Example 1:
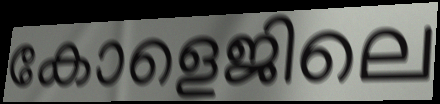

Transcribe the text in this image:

കോളെജിലെ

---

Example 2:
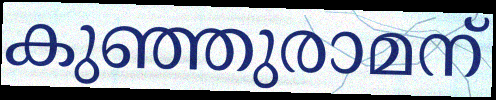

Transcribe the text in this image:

കുഞ്ഞുരാമന്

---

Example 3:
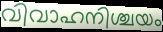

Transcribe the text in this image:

വിവാഹനിശ്ചയം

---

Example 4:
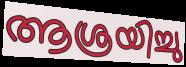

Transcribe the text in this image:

ആശ്രയിച്ചു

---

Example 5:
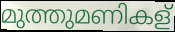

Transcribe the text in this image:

മുത്തുമണികള്